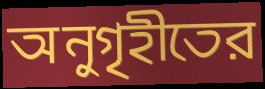
অনুগৃহীতের